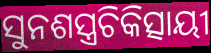
ସୁନଶସ୍ତ୍ରଚିକିତ୍ସାୟୀ